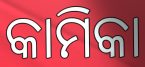
କାମିକା